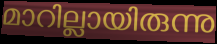
മാറില്ലായിരുന്നു